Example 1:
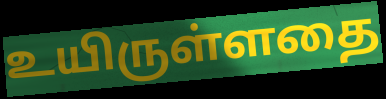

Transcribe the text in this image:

உயிருள்ளதை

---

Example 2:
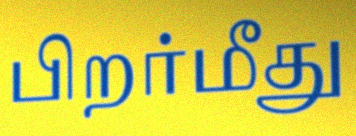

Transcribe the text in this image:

பிறர்மீது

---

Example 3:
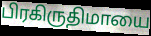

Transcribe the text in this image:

பிரகிருதிமாயை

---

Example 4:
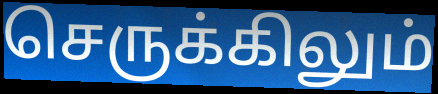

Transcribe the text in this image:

செருக்கிலும்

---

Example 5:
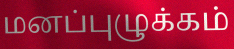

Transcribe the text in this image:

மனப்புழுக்கம்